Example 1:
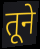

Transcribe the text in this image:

तूने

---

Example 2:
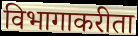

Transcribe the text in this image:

विभागाकरीता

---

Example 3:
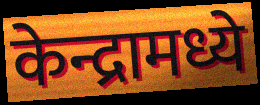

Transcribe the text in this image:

केन्द्रामध्ये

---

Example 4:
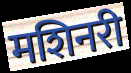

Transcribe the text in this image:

मशिनरी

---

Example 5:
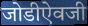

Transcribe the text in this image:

जोडीऐवजी